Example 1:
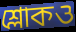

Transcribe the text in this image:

শ্লোকও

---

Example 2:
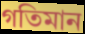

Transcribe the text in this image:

গতিমান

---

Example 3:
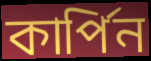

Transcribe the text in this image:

কার্পিন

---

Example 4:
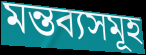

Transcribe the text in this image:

মন্তব্যসমূহ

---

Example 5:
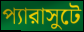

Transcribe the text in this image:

প্যারাসুটে